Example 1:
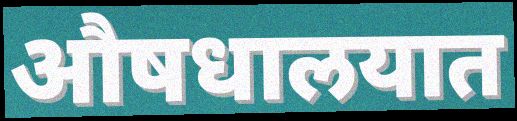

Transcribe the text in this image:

औषधालयात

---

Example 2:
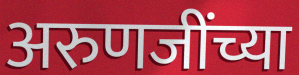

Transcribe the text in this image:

अरुणजींच्या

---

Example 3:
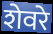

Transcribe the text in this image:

शेवरे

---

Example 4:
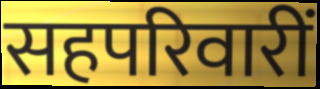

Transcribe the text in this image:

सहपरिवारीं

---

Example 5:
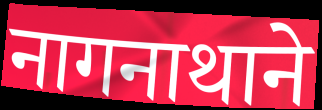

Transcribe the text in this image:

नागनाथाने